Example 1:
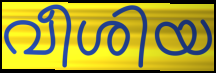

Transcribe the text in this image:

വീശിയ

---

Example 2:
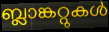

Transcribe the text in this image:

ബ്ലാങ്കറ്റുകൾ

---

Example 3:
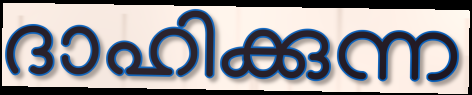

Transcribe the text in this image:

ദാഹിക്കുന്ന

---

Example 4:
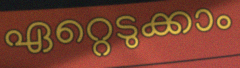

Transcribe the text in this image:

ഏറ്റെടുക്കാം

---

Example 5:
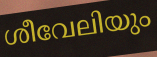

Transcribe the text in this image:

ശീവേലിയും